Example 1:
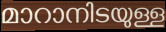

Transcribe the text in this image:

മാറാനിടയുള്ള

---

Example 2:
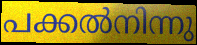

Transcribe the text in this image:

പക്കൽനിന്നു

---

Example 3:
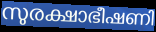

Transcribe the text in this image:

സുരക്ഷാഭീഷണി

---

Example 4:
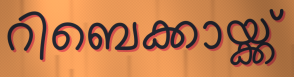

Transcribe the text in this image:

റിബെക്കായ്ക്ക്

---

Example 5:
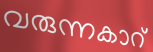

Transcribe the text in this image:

വരുന്നകാറ്